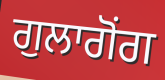
ਗੁਲਾਗੋਂਗ